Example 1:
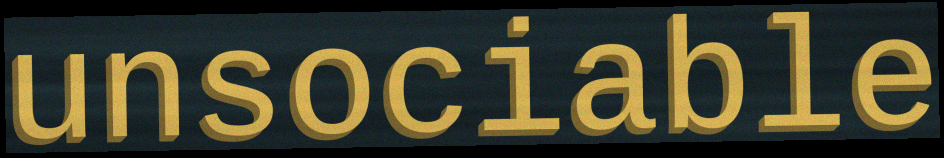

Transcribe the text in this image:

unsociable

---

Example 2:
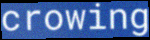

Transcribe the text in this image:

crowing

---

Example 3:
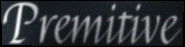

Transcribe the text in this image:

Premitive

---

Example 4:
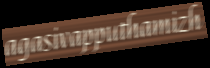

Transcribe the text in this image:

agasivapputhamizh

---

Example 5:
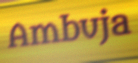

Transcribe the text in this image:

Ambuja